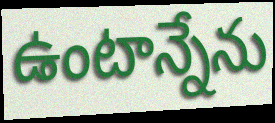
ఉంటాన్నేను